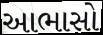
આભાસો